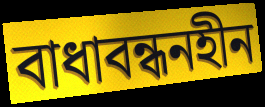
বাধাবন্ধনহীন